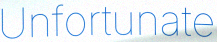
Unfortunate